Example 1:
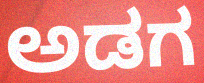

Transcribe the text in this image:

ಅಡಗ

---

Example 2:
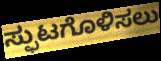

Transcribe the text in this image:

ಸ್ಫುಟಗೊಳಿಸಲು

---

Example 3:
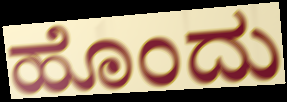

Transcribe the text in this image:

ಹೊಂದು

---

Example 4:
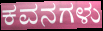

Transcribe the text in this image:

ಕವನಗಳು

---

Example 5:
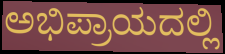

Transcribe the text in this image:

ಅಭಿಪ್ರಾಯದಲ್ಲಿ